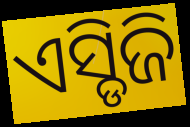
ଏସ୍ଡିଜି